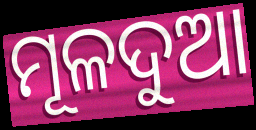
ମୂଳଦୁଆ